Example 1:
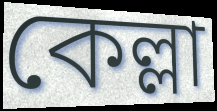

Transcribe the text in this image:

কেল্লা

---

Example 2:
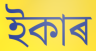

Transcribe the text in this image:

ইকাৰ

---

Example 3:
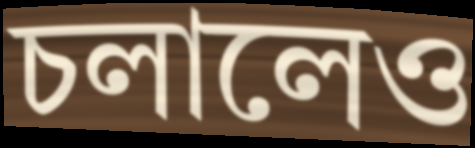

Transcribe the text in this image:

চলালেও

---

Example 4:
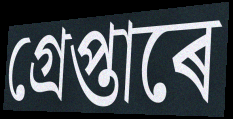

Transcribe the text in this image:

গ্ৰেপ্তাৰে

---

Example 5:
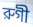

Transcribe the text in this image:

ৰুগী